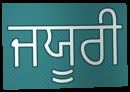
ਜਯੂਰੀ